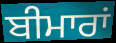
ਬੀਮਾਰਾਂ